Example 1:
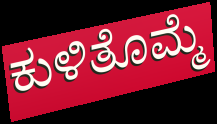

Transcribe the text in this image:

ಕುಳಿತೊಮ್ಮೆ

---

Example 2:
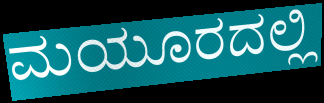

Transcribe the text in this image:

ಮಯೂರದಲ್ಲಿ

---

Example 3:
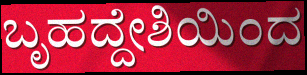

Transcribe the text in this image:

ಬೃಹದ್ದೇಶಿಯಿಂದ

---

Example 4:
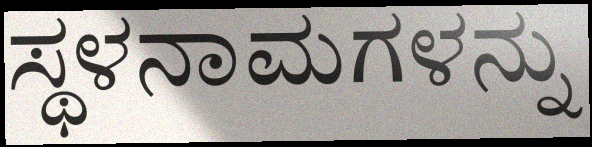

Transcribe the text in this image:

ಸ್ಥಳನಾಮಗಳನ್ನು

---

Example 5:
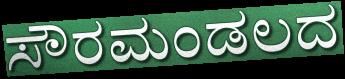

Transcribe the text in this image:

ಸೌರಮಂಡಲದ